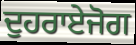
ਦੁਹਰਾਏਜੋਗ